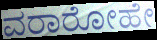
ವರಾರೋಹೇ